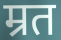
म्रत